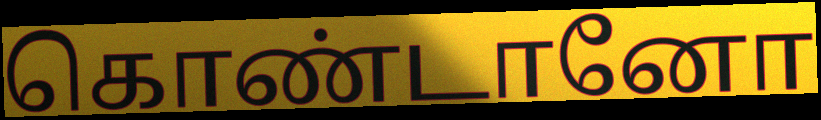
கொண்டானோ